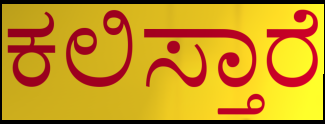
ಕಲಿಸ್ತಾರೆ